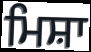
ਮਿਸ਼ਾ